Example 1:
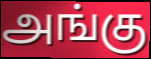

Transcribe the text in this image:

அங்கு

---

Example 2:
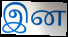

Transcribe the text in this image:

இன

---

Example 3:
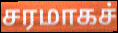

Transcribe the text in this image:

சரமாகச்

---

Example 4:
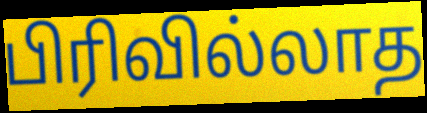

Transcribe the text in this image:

பிரிவில்லாத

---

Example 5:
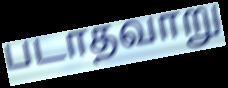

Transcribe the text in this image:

படாதவாறு